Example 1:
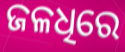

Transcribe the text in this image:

ଜଳଧିରେ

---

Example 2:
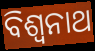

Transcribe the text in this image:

ବିଶ୍ଵନାଥ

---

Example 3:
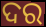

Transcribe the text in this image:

ଦର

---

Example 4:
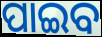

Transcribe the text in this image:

ପାଇବ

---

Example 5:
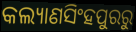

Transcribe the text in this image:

କଲ୍ୟାଣସିଂହପୁରରୁ